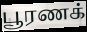
பூரணக்